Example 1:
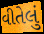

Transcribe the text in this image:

વીતેલું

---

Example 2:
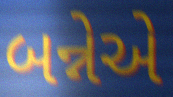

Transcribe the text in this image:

બન્નેએ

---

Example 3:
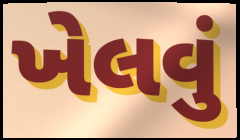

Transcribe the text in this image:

ખેલવું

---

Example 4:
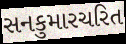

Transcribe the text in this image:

સનકુમારચરિત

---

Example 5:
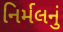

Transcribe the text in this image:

નિર્મલનું